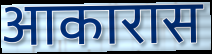
आकारास